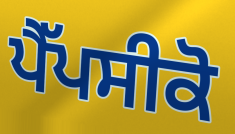
ਪੈੱਪਸੀਕੋ